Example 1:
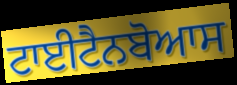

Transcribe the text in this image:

ਟਾਈਟੈਨਬੋਆਸ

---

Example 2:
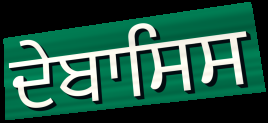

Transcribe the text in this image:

ਦੇਬਾਸਿਸ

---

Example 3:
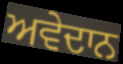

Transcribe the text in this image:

ਅਵੇਦਾਨ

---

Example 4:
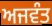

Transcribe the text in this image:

ਅਜਵੰਤ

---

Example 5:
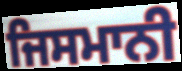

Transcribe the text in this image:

ਜਿਸਮਾਨੀ